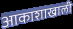
आकाशाखाली